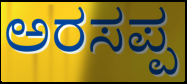
ಅರಸಪ್ಪ